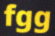
fgg